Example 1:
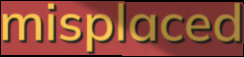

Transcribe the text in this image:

misplaced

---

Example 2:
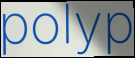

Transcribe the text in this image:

polyp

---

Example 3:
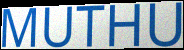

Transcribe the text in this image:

MUTHU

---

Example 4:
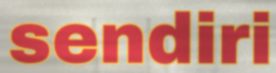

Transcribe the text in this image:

sendiri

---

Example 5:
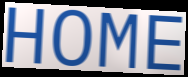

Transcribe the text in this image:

HOME